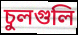
চুলগুলি